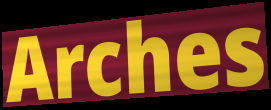
Arches